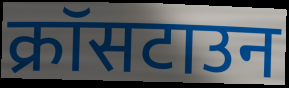
क्रॉसटाउन